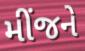
મીંજને